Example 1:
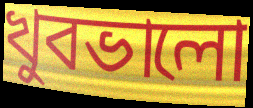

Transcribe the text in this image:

খুবভালো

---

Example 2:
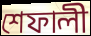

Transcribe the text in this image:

শেফালী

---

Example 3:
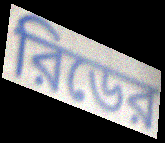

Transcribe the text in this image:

রিডের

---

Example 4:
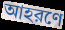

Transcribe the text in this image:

আহরণে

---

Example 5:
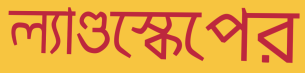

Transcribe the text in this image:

ল্যাণ্ডস্কেপের